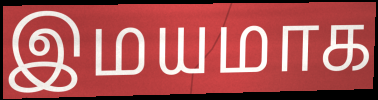
இமயமாக